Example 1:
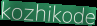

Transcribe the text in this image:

kozhikode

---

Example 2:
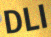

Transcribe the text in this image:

DLI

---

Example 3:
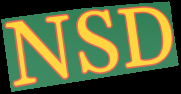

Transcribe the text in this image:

NSD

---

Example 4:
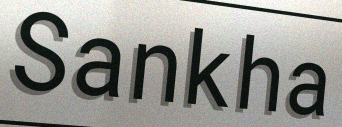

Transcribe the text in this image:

Sankha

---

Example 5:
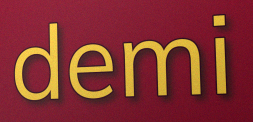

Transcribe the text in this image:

demi